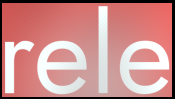
rele